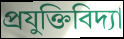
প্ৰযুক্তিবিদ্যা